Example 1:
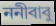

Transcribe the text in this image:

ননীবাবু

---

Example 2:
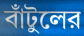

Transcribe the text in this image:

বাঁটুলের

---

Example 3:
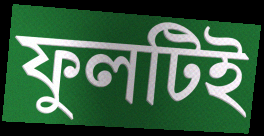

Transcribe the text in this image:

ফুলটিই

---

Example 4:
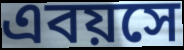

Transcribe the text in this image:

এবয়সে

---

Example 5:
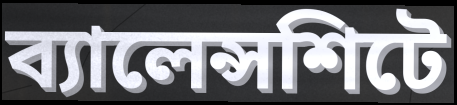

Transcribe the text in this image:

ব্যালেন্সশিটে